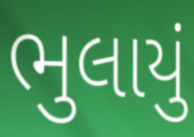
ભુલાયું